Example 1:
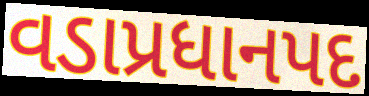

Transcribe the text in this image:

વડાપ્રધાનપદ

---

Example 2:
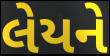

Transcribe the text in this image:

લેયને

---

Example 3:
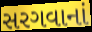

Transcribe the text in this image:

સરગવાનાં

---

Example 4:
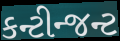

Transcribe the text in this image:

કન્ટીન્જન્ટ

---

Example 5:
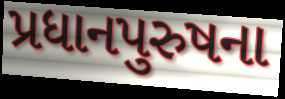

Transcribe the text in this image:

પ્રધાનપુરુષના